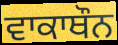
ਵਾਕਾਥੌਨ